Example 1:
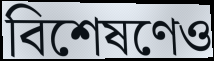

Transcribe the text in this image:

বিশেষণেও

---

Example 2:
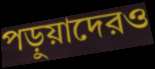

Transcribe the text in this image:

পড়ুয়াদেরও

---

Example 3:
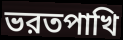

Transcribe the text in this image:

ভরতপাখি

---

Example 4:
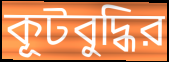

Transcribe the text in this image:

কূটবুদ্ধির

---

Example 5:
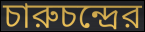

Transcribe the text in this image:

চারুচন্দ্রের